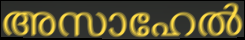
അസാഹേൽ